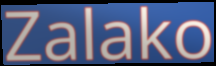
Zalako